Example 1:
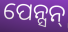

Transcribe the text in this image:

ପେନ୍ସନ୍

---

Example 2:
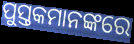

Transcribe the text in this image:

ପୁସ୍ତକମାନଙ୍କରେ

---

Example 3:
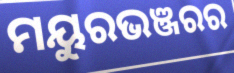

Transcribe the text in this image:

ମୟୁରଭଞ୍ଜରର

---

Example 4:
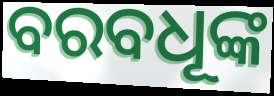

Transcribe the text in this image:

ବରବଧୂଙ୍କ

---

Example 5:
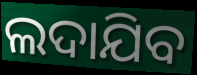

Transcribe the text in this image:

ଲଦାଯିବ